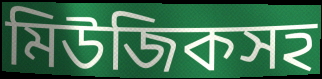
মিউজিকসহ